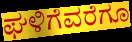
ಘಳಿಗೆವರೆಗೂ